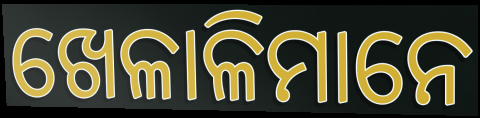
ଖେଳାଳିମାନେ